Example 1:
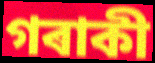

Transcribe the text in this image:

গৰাকী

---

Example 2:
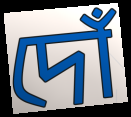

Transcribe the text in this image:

দোঁ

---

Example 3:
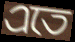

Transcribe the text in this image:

এতে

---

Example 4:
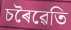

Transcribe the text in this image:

চৰৈৱেতি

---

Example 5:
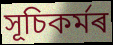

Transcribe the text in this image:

সূচিকৰ্মৰ